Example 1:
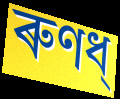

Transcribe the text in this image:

ৰুণধ্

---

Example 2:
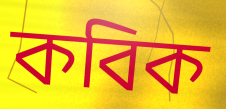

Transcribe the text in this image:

কবিক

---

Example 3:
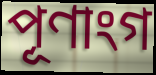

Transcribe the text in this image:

পূণাংগ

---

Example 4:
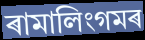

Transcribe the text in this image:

ৰামালিংগমৰ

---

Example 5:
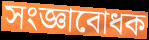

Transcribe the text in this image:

সংজ্ঞাবোধক